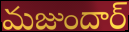
మజుందార్